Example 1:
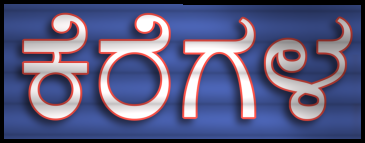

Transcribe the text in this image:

ಕೆರೆಗಳ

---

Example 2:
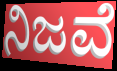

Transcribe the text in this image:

ನಿಜವೆ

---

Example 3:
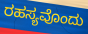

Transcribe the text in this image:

ರಹಸ್ಯವೊಂದು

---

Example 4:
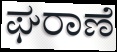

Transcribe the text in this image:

ಘರಾಣೆ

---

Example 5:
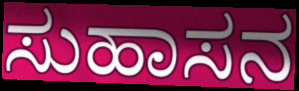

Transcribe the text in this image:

ಸುಹಾಸನ